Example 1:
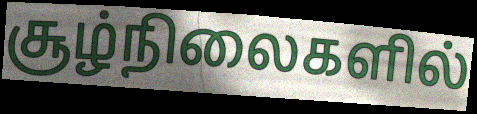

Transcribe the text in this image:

சூழ்நிலைகளில்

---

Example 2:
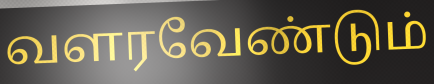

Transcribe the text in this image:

வளரவேண்டும்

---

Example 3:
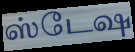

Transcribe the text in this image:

ஸ்டேஷ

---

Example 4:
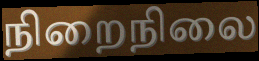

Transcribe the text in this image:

நிறைநிலை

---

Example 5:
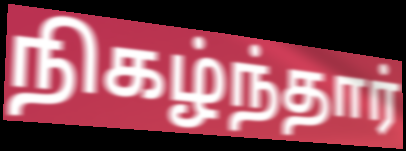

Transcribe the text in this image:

நிகழ்ந்தார்